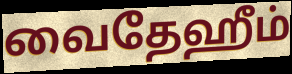
வைதேஹீம்